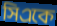
সিএকে